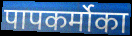
पापकर्मोका